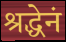
श्रद्धेनं